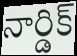
నార్డిక్